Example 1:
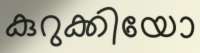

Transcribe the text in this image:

കുറുക്കിയോ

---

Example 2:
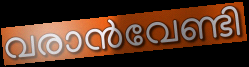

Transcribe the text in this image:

വരാൻവേണ്ടി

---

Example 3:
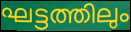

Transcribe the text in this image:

ഘട്ടത്തിലും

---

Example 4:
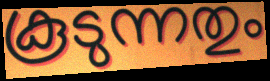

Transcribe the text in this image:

കൂടുന്നതും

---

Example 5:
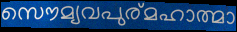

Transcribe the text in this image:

സൌമ്യവപുര്മഹാത്മാ